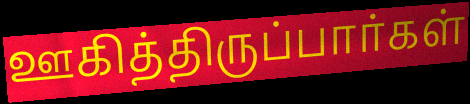
ஊகித்திருப்பார்கள்